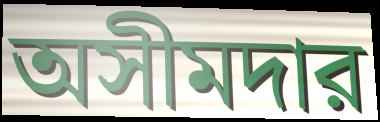
অসীমদার